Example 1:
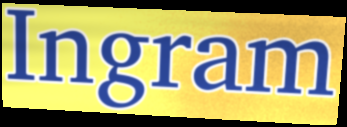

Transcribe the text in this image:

Ingram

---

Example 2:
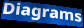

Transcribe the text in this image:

Diagrams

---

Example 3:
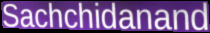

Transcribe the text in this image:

Sachchidanand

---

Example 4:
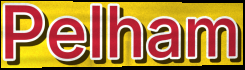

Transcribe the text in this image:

Pelham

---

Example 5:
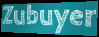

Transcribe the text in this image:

Zubuyer